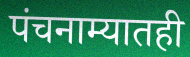
पंचनाम्यातही